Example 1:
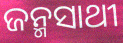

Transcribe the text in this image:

ଜନ୍ମସାଥୀ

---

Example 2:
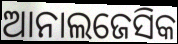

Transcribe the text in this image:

ଆନାଲଜେସିକ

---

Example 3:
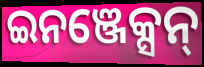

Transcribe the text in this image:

ଇନଞ୍ଜେକ୍ସନ୍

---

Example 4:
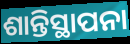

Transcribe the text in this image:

ଶାନ୍ତିସ୍ଥାପନା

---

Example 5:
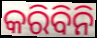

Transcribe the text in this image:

କରିବିନି